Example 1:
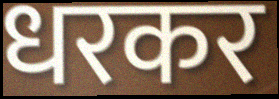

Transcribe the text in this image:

धरकर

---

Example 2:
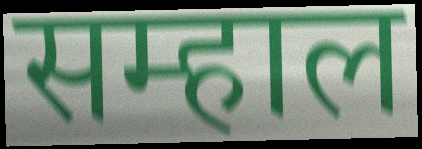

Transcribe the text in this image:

सम्हाल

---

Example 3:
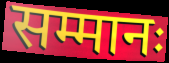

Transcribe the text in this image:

सम्मानः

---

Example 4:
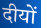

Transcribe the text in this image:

दीयों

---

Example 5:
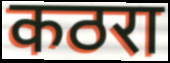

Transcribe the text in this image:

कठरा